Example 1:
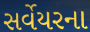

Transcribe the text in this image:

સર્વેયરના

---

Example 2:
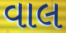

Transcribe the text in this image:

વાલ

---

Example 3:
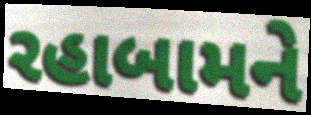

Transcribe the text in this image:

રહાબામને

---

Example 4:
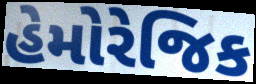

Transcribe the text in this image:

હેમોરેજિક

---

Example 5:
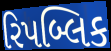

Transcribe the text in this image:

રિપબ્લિક